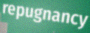
repugnancy